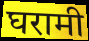
घरामी